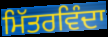
ਮਿੱਤਰਵਿੰਦਾ